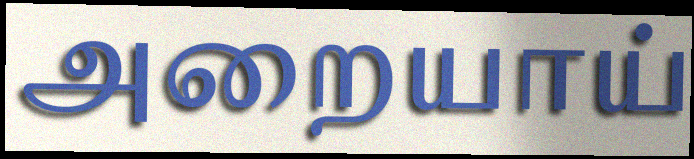
அறையாய்